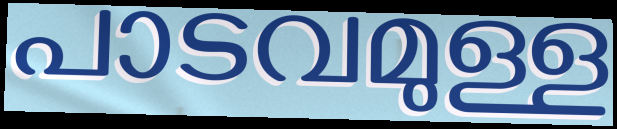
പാടവമുള്ള